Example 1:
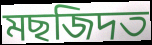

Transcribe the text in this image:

মছজিদত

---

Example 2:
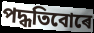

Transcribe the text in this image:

পদ্ধতিবোৰে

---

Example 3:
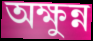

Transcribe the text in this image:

অক্ষুন্ন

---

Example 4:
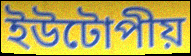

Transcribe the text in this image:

ইউটোপীয়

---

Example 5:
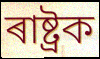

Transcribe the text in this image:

ৰাষ্ট্ৰক